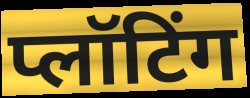
प्लॉटिंग